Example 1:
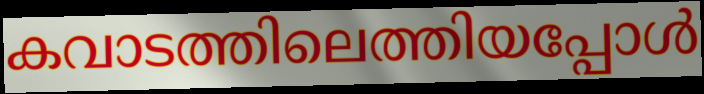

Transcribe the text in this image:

കവാടത്തിലെത്തിയപ്പോൾ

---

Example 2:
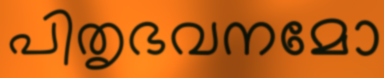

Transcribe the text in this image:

പിതൃഭവനമോ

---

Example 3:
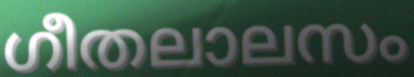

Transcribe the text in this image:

ഗീതലാലസം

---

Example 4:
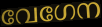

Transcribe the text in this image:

വേഗേന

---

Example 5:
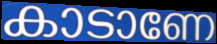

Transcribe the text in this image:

കാടാണേ